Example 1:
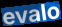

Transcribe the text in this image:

evalo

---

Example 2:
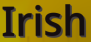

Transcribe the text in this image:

Irish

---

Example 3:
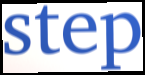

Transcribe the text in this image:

step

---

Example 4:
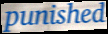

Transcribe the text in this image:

punished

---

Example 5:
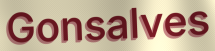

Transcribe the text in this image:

Gonsalves